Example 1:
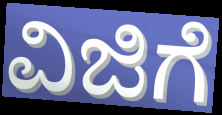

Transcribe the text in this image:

ವಿಜಿಗೆ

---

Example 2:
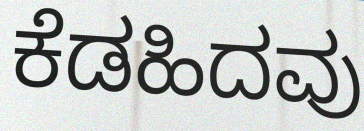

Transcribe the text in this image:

ಕೆಡಹಿದವು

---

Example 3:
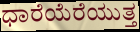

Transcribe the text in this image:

ಧಾರೆಯೆರೆಯುತ್ತ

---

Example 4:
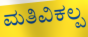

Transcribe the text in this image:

ಮತಿವಿಕಲ್ಪ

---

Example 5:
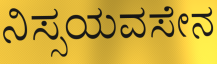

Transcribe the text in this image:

ನಿಸ್ಸಯವಸೇನ